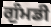
ਗੁੰਮਡੀ